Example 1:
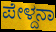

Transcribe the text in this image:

ಪೇಳ್ದನಾ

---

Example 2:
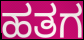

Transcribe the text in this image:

ಹತಗ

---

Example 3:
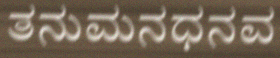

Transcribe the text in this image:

ತನುಮನಧನವ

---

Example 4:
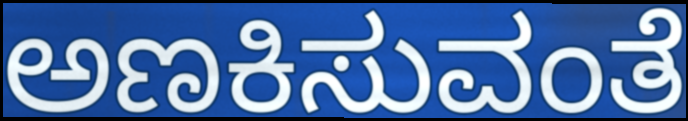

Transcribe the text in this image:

ಅಣಕಿಸುವಂತೆ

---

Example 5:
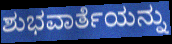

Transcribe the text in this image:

ಶುಭವಾರ್ತೆಯನ್ನು